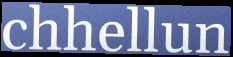
chhellun